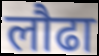
लौढा